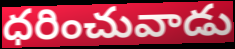
ధరించువాడు